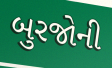
બુરજોની